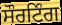
ਸੌਰਟਿੰਗ